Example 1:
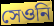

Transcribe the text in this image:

সেওনি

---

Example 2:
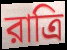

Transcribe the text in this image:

রাত্রি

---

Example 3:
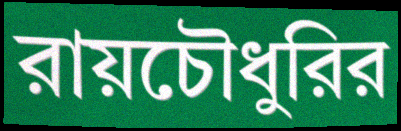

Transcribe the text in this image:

রায়চৌধুরির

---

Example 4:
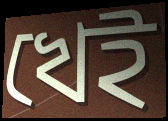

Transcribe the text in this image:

খেই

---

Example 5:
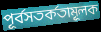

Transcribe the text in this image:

পূর্বসতর্কতামূলক